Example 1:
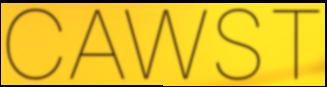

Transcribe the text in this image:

CAWST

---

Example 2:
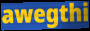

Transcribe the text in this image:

awegthi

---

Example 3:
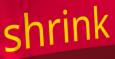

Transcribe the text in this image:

shrink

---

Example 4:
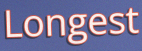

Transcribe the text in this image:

Longest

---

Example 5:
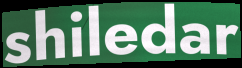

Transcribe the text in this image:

shiledar